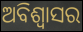
ଅବିଶ୍ବାସର